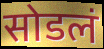
सोडलं